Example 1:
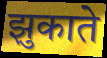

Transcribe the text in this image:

झुकाते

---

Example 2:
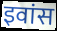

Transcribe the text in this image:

इवांस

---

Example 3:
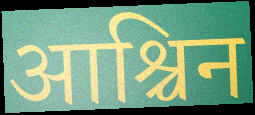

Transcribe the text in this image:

आश्चिन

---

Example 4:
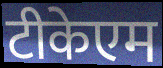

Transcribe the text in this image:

टीकेएम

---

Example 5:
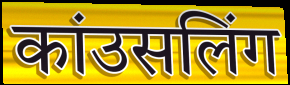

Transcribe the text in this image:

कांउसलिंग